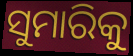
ସୁମାରିକୁ